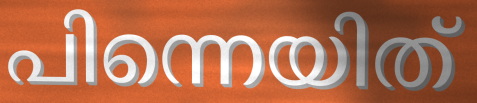
പിന്നെയിത്